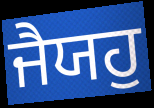
ਜੈਯਹੁ